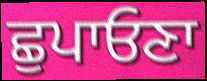
ਛੁਪਾਓਣਾ